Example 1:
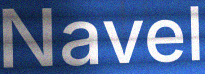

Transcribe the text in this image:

Navel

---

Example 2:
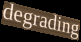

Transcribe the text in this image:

degrading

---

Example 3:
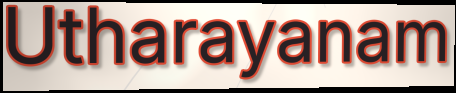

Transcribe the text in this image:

Utharayanam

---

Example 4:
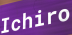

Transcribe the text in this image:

Ichiro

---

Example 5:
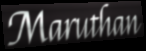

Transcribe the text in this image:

Maruthan